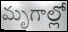
మృగాల్లో